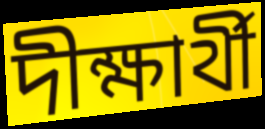
দীক্ষার্থী